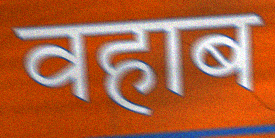
वहाब